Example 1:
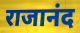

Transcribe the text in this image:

राजानंद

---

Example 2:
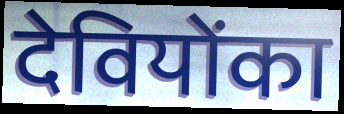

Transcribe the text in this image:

देवियोंका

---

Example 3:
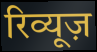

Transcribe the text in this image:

रिव्यूज़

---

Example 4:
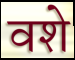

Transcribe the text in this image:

वशे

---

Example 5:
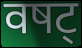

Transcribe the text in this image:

वषट्